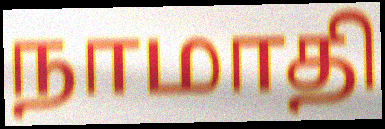
நாமாதி